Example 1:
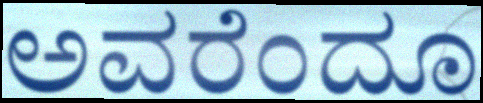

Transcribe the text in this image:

ಅವರೆಂದೂ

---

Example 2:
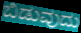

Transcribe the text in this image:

ಬಿಡುವುದು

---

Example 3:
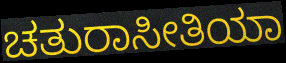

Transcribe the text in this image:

ಚತುರಾಸೀತಿಯಾ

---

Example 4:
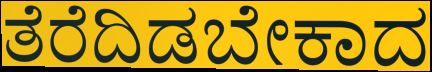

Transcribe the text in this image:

ತೆರೆದಿಡಬೇಕಾದ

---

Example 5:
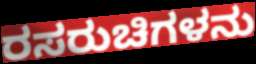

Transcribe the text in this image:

ರಸರುಚಿಗಳನು